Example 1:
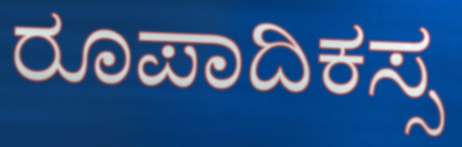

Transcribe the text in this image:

ರೂಪಾದಿಕಸ್ಸ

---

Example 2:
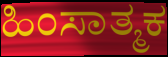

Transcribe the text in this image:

ಹಿಂಸಾತ್ಮಕ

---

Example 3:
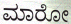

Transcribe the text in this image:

ಮಾರೋ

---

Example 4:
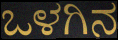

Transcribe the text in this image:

ಒಳಗಿನ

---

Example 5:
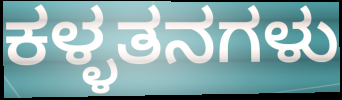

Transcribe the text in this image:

ಕಳ್ಳತನಗಳು